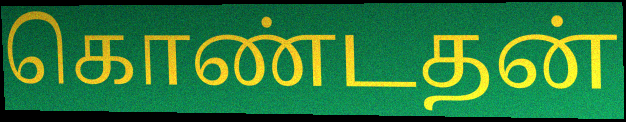
கொண்டதன்